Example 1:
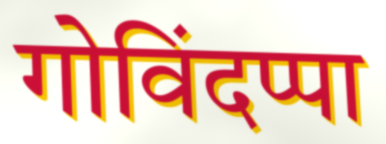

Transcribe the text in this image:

गोविंदप्पा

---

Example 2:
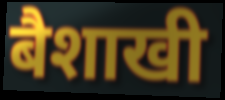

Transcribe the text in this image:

बैशाखी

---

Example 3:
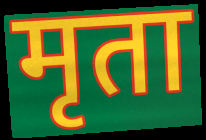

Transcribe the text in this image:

मृता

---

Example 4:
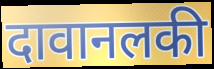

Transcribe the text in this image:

दावानलकी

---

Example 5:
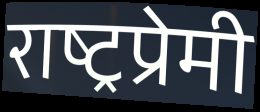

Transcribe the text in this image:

राष्ट्रप्रेमी